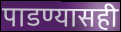
पाडण्यासही